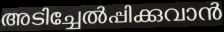
അടിച്ചേൽപ്പിക്കുവാൻ